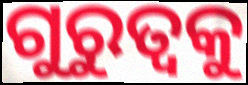
ଗୁରୁତ୍ୱକୁ